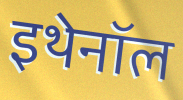
इथेनॉल